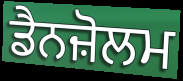
ਡੈਨਜ਼ੋਲਮ